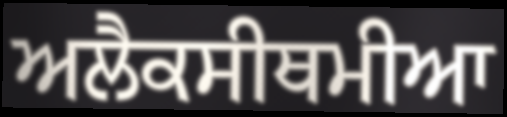
ਅਲੈਕਸੀਥਮੀਆ